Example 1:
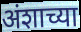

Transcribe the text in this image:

अंशाच्या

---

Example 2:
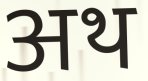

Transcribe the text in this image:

अथ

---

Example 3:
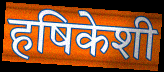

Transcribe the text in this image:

हषिकेशी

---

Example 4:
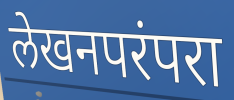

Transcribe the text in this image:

लेखनपरंपरा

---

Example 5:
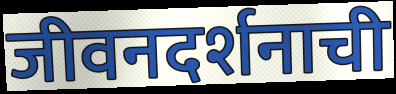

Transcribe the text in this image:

जीवनदर्शनाची